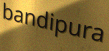
bandipura